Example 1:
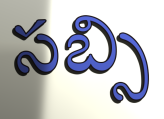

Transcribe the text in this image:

సబ్సి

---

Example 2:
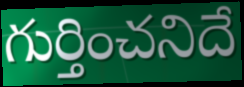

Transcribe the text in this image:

గుర్తించనిదే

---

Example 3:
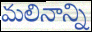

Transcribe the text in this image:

మలినాన్ని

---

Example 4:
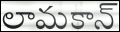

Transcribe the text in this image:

లామకాన్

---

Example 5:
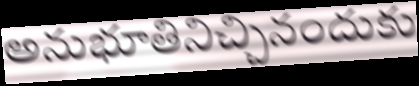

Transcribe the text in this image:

అనుభూతినిచ్చినందుకు